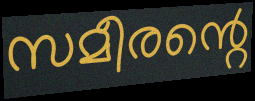
സമീരന്റെ